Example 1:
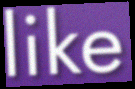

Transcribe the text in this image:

like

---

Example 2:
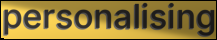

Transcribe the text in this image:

personalising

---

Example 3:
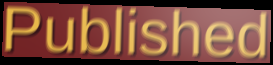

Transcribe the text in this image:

Published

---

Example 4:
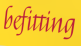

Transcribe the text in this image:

befitting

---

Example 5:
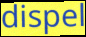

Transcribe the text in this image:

dispel